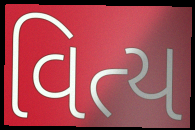
વિત્ય